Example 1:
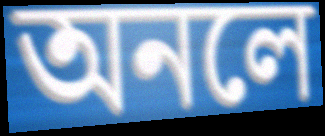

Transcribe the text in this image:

অনলে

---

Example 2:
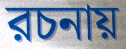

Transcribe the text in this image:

রচনায়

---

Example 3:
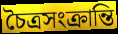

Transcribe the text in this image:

চৈত্রসংক্রান্তি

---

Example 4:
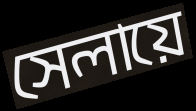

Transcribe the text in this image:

সেলায়ে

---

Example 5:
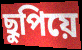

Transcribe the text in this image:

ছুপিয়ে